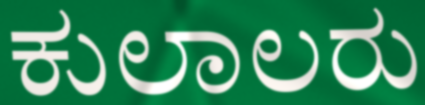
ಕುಲಾಲರು